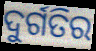
ଦୁର୍ଗତିର